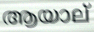
ആയാല്